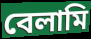
বেলামি